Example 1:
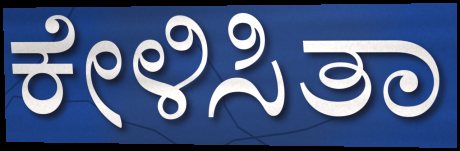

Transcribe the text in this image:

ಕೇಳಿಸಿತಾ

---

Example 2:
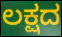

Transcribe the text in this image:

ಲಕ್ಷದ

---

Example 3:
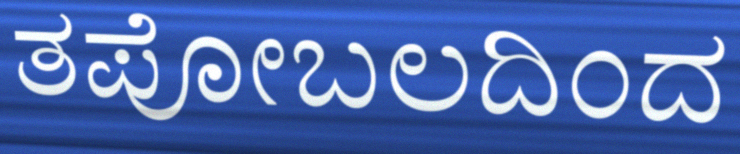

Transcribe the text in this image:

ತಪೋಬಲದಿಂದ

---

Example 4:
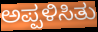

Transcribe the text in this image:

ಅಪ್ಪಳಿಸಿತು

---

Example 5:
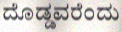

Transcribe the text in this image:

ದೊಡ್ಡವರೆಂದು